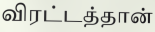
விரட்டத்தான்